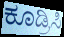
ಕೂಡ್ರಿಸಿ